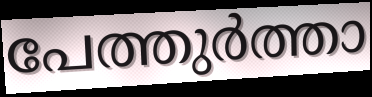
പേത്തുർത്താ